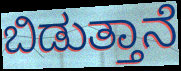
ಬಿಡುತ್ತಾನೆ